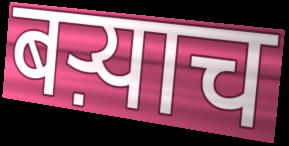
बऱ्‍याच